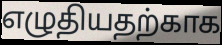
எழுதியதற்காக